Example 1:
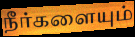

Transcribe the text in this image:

நீர்களையும்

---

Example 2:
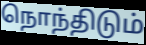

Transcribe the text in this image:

நொந்திடும்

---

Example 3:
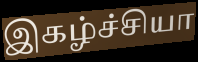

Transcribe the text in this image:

இகழ்ச்சியா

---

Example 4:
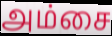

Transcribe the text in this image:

அம்சை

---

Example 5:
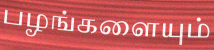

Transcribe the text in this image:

பழங்களையும்